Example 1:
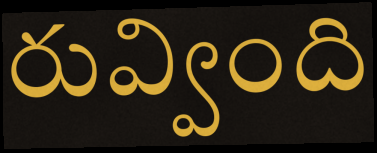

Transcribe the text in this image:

రువ్వింది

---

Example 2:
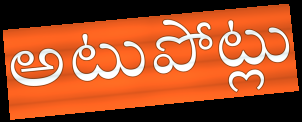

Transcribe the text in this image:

అటుపోట్లు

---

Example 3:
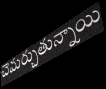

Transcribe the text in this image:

చెమర్చుతున్నాయి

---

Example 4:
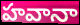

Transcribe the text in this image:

హవానా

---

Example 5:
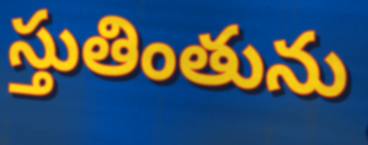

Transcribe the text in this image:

స్తుతింతును